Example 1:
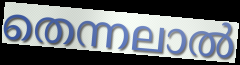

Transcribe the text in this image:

തെന്നലാൽ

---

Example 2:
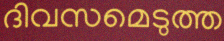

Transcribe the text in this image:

ദിവസമെടുത്ത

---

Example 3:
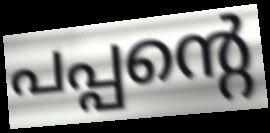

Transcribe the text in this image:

പപ്പന്റെ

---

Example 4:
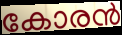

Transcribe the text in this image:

കോരൻ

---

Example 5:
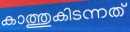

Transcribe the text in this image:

കാത്തുകിടന്നത്